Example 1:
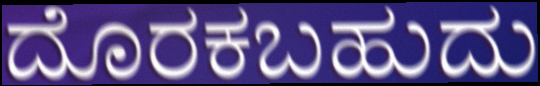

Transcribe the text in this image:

ದೊರಕಬಹುದು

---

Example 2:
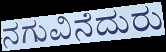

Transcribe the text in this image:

ನಗುವಿನೆದುರು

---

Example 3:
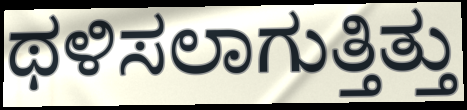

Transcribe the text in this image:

ಥಳಿಸಲಾಗುತ್ತಿತ್ತು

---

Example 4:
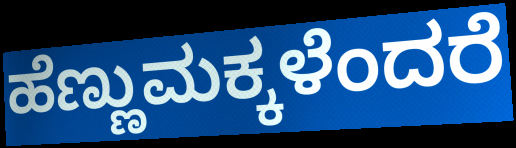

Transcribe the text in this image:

ಹೆಣ್ಣುಮಕ್ಕಳೆಂದರೆ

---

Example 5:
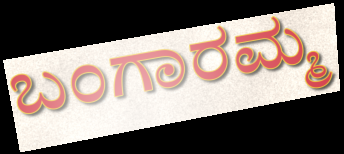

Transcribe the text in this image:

ಬಂಗಾರಮ್ಮ